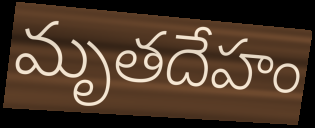
మృతదేహం